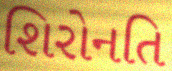
શિરોનતિ